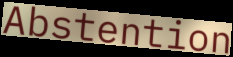
Abstention